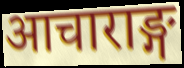
आचाराङ्ग